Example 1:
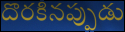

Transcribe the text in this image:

దొరకినప్పుడు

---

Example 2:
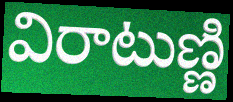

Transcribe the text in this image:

విరాటుణ్ణి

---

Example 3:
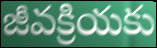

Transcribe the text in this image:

జీవక్రియకు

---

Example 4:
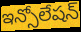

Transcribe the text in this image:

ఇన్సోలేషన్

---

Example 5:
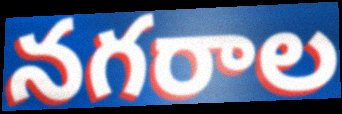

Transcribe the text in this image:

నగరాల